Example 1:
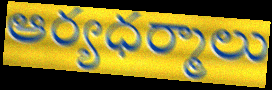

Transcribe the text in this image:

ఆర్యధర్మాలు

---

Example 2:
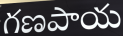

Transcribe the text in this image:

గణపాయ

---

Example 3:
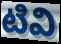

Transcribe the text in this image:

టివి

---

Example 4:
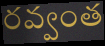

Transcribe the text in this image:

రవ్వంత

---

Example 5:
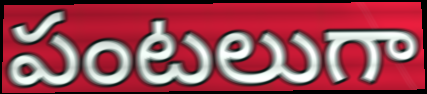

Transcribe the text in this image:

పంటలుగా